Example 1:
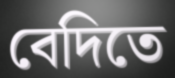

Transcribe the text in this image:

বেদিতে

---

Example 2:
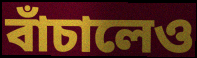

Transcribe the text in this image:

বাঁচালেও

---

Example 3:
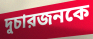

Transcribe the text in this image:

দুচারজনকে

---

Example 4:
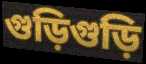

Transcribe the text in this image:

গুড়িগুড়ি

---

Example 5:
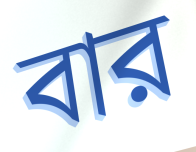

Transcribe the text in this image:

বার